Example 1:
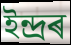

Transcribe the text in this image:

ইন্দ্ৰৰ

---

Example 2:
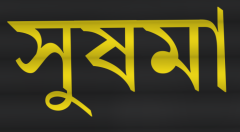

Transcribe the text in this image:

সুষমা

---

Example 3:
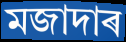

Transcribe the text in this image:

মজাদাৰ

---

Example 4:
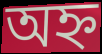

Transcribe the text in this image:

অহ্ন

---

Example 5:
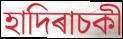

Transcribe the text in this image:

হাদিৰাচকী